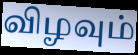
விழவும்